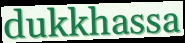
dukkhassa